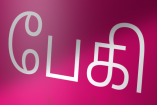
பேகி